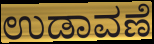
ಉಡಾವಣೆ